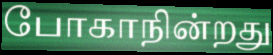
போகாநின்றது